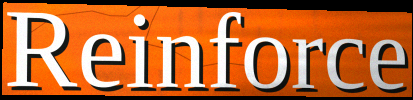
Reinforce